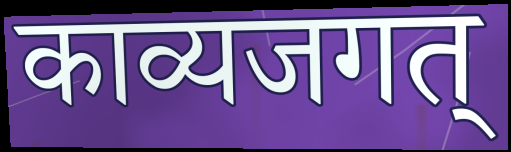
काव्यजगत्